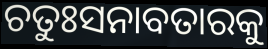
ଚତୁଃସନାବତାରକୁ